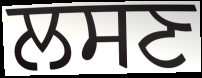
ਲਸਣ